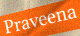
Praveena